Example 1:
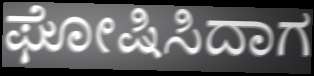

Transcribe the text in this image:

ಘೋಷಿಸಿದಾಗ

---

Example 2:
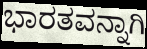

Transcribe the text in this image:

ಭಾರತವನ್ನಾಗಿ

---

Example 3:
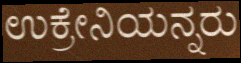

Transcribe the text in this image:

ಉಕ್ರೇನಿಯನ್ನರು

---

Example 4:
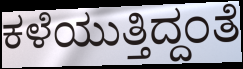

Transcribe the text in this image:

ಕಳೆಯುತ್ತಿದ್ದಂತೆ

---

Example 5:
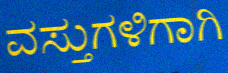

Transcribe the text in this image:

ವಸ್ತುಗಳಿಗಾಗಿ